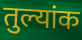
तुल्यांक